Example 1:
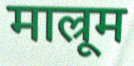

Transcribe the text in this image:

माल्रूम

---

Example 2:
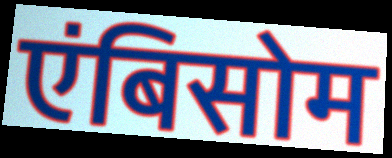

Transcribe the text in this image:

एंबिसोम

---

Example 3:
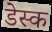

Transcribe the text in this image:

डेस्क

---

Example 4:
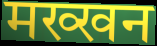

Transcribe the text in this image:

मख्खन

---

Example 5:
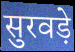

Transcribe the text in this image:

सुरवड़े